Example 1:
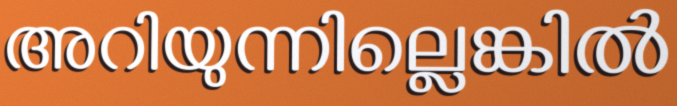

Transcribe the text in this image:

അറിയുന്നില്ലെങ്കിൽ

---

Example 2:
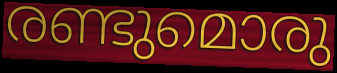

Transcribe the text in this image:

രണ്ടുമൊരു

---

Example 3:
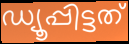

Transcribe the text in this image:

ഡ്യൂപ്പിട്ടത്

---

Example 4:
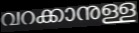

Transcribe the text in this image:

വറക്കാനുള്ള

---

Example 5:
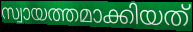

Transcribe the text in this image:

സ്വായത്തമാക്കിയത്